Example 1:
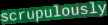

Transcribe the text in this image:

scrupulously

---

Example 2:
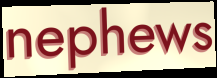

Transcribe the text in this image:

nephews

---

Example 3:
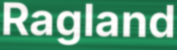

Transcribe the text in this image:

Ragland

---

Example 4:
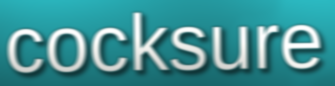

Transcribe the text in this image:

cocksure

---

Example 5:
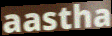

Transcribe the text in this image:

aastha